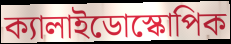
ক্যালাইডোস্কোপিক